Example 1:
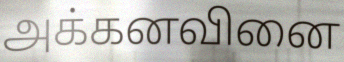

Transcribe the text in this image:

அக்கனவினை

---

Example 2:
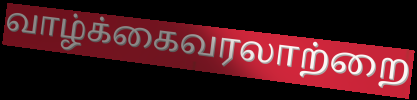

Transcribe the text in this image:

வாழ்க்கைவரலாற்றை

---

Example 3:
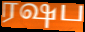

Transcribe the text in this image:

ரஷப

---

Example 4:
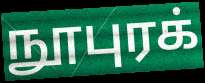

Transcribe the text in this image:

நூபுரக்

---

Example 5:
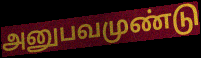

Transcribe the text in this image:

அனுபவமுண்டு